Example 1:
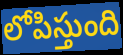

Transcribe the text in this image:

లోపిస్తుంది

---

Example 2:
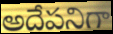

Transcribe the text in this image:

అదేపనిగా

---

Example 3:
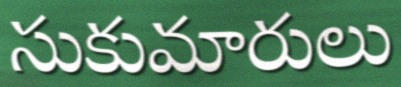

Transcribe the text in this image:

సుకుమారులు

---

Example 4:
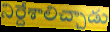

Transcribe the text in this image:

నిర్దేశాలిచ్చాడు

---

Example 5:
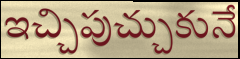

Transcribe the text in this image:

ఇచ్చిపుచ్చుకునే